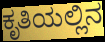
ಕೃತಿಯಲ್ಲಿನ